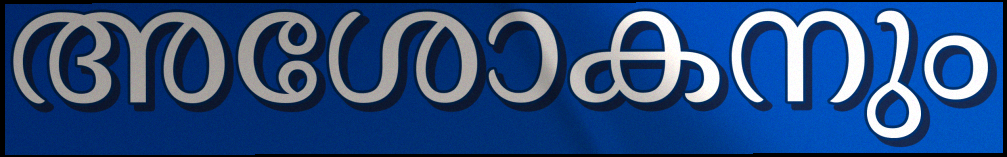
അശോകനും